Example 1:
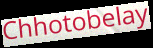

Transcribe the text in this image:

Chhotobelay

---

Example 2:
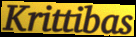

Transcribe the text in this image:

Krittibas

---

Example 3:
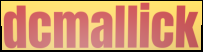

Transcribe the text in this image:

dcmallick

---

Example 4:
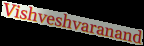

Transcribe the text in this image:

Vishveshvaranand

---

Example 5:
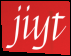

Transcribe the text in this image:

jiyt